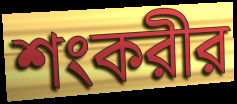
শংকরীর